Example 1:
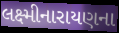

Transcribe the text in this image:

લક્ષ્મીનારાયણના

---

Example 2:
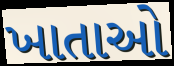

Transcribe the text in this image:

ખાતાઓ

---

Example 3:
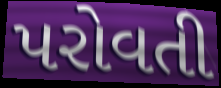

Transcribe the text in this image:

પરોવતી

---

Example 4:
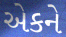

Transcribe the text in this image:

એકને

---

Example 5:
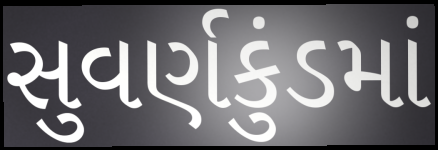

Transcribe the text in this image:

સુવર્ણકુંડમાં